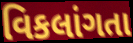
વિકલાંગતા